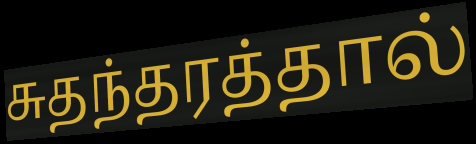
சுதந்தரத்தால்